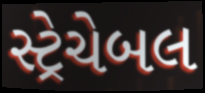
સ્ટ્રેચેબલ